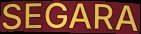
SEGARA